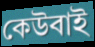
কেউবাই